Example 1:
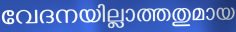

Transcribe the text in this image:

വേദനയില്ലാത്തതുമായ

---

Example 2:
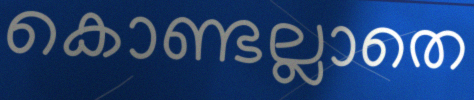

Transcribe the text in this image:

കൊണ്ടല്ലാതെ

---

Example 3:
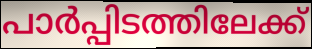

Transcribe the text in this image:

പാർപ്പിടത്തിലേക്ക്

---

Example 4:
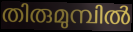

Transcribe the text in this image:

തിരുമുമ്പിൽ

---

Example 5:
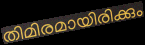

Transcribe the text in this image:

തിമിരമായിരിക്കും